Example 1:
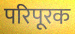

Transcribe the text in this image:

परिपूरक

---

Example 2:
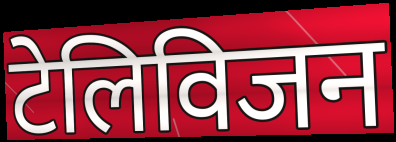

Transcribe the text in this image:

टेलिविजन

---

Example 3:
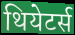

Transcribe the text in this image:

थियेटर्स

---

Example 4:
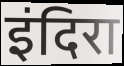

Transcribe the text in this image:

इंदिरा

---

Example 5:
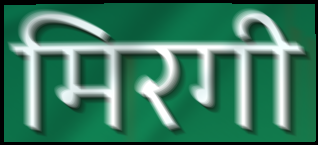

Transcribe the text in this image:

मिरगी